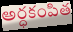
అర్ధకంపిత